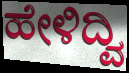
ಹೇಳಿದ್ವಿ